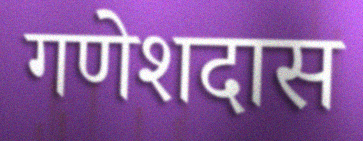
गणेशदास